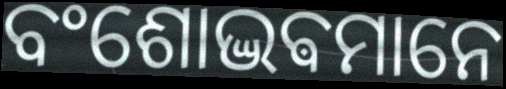
ବଂଶୋଦ୍ଭଵମାନେ